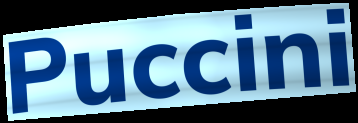
Puccini